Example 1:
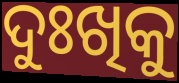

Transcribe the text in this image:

ଦୁଃଖିକୁ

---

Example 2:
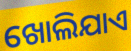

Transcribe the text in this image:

ଖୋଲିଯାଏ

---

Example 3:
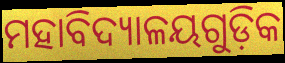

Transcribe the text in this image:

ମହାବିଦ୍ୟାଳୟଗୁଡ଼ିକ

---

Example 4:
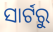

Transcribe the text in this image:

ସାର୍ଟରୁ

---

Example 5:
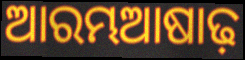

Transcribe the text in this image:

ଆରମ୍ଭଆଷାଢ଼